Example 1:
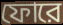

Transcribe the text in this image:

ফোরে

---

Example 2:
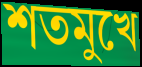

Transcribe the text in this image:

শতমুখে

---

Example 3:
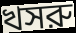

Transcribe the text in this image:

খসরু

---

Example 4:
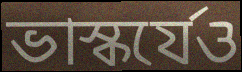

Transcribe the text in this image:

ভাস্কর্যেও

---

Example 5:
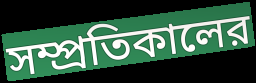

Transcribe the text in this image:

সম্প্রতিকালের